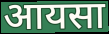
आयसा